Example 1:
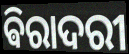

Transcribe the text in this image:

ଵିରାଦରୀ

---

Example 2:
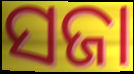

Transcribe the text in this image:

ସଜା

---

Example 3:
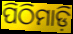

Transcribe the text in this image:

ପିଠିମାଡ଼ି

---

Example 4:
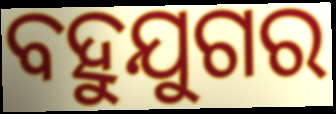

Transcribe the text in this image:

ବହୁଯୁଗର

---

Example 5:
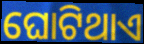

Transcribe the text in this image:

ଘୋଟିଥାଏ